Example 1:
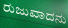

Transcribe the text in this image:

ರುಜುವಾದನು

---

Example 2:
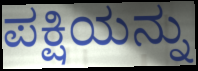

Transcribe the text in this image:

ಪಕ್ಷಿಯನ್ನು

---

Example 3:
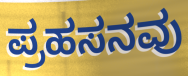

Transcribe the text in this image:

ಪ್ರಹಸನವು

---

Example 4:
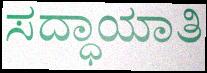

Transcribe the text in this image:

ಸದ್ಧಾಯಾತಿ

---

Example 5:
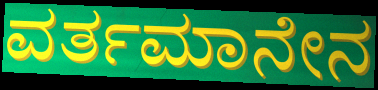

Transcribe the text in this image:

ವರ್ತಮಾನೇನ